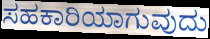
ಸಹಕಾರಿಯಾಗುವುದು